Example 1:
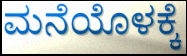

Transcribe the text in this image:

ಮನೆಯೊಳಕ್ಕೆ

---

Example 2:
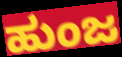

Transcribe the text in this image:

ಹುಂಜ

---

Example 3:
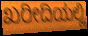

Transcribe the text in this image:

ಖರೀದಿಯಲ್ಲಿ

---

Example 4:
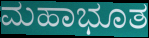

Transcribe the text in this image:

ಮಹಾಭೂತ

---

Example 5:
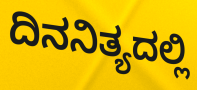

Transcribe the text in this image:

ದಿನನಿತ್ಯದಲ್ಲಿ